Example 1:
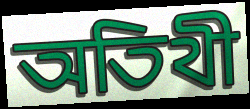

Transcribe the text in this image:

অতিথী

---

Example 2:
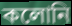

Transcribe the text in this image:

কলোনি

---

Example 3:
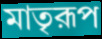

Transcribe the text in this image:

মাতৃরূপ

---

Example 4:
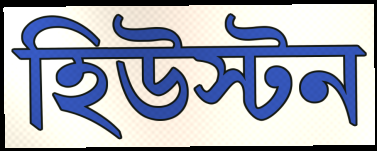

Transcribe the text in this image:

হিউস্টন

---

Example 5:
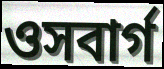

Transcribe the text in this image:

ওসবার্গ